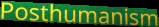
Posthumanism